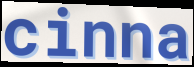
cinna